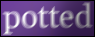
potted